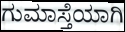
ಗುಮಾಸ್ತೆಯಾಗಿ